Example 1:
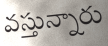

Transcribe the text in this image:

వస్తున్నారు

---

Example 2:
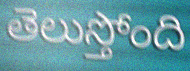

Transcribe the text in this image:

తెలుస్తోంది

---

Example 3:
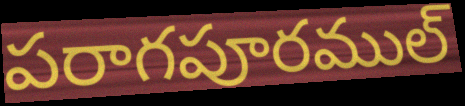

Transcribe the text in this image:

పరాగపూరముల్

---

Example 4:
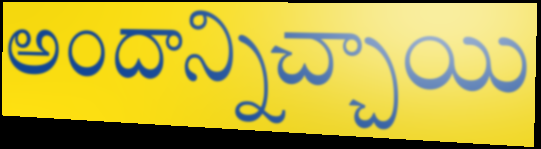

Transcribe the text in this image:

అందాన్నిచ్చాయి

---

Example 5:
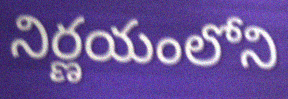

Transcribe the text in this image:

నిర్ణయంలోని